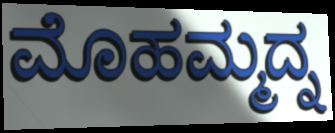
ಮೊಹಮ್ಮದ್ನ